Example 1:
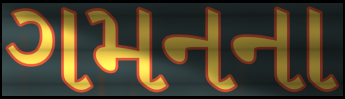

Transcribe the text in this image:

ગમનના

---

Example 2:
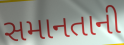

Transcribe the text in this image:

સમાનતાની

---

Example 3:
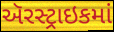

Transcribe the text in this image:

ઍરસ્ટ્રાઇકમાં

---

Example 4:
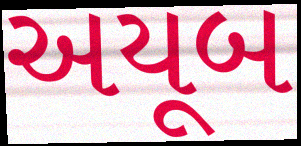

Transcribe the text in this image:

અયૂબ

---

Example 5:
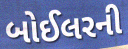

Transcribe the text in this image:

બોઈલરની